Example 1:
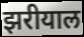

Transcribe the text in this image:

झरीयाल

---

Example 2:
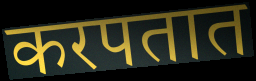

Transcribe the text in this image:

करपतात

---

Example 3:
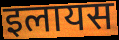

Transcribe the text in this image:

इलायस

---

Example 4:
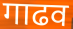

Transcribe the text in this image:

गाढव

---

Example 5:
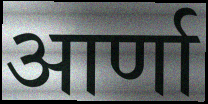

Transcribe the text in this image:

आर्णा